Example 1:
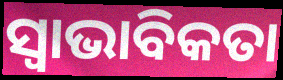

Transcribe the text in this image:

ସ୍ବାଭାବିକତା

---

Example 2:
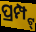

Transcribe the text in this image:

ପ୍ରମ୍ପ୍ଟ୍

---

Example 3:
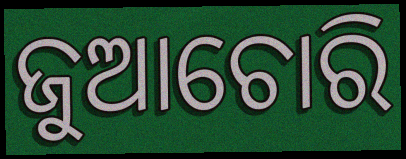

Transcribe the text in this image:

ଜୁଆଚୋରି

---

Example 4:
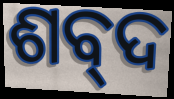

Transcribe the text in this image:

ଶବ୍‍ଦ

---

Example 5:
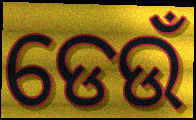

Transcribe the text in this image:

ଡେଉଁ